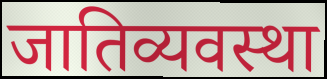
जातिव्यवस्था